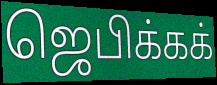
ஜெபிக்கக்